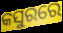
କସୁରରେ